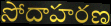
సోదాహరణ